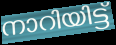
നാറിയിട്ട്